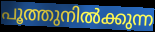
പൂത്തുനിൽക്കുന്ന